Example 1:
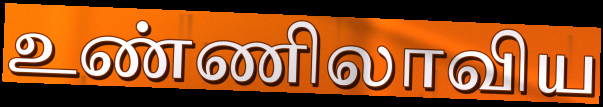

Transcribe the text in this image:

உண்ணிலாவிய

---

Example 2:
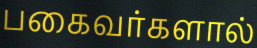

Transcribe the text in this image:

பகைவர்களால்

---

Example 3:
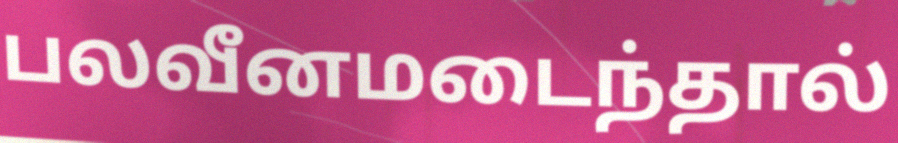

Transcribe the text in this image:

பலவீனமடைந்தால்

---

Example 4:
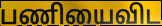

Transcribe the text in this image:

பணியைவிட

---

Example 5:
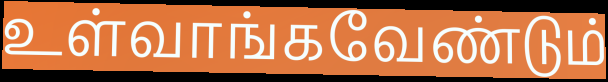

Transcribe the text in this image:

உள்வாங்கவேண்டும்